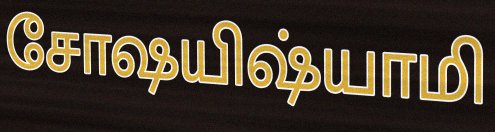
சோஷயிஷ்யாமி